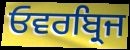
ਓਵਰਬ੍ਰਿਜ